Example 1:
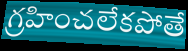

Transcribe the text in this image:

గ్రహించలేకపోతే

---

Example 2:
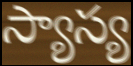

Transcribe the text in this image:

స్యాస్య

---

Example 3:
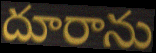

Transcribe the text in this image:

దూరాను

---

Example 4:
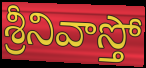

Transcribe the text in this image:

శ్రీనివాస్తో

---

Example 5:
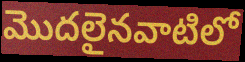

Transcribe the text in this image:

మొదలైనవాటిలో